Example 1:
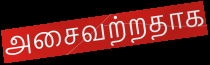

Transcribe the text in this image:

அசைவற்றதாக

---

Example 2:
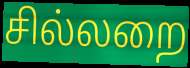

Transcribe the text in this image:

சில்லறை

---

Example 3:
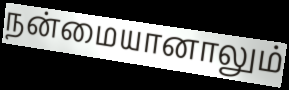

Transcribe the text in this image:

நன்மையானாலும்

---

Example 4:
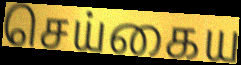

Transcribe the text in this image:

செய்கைய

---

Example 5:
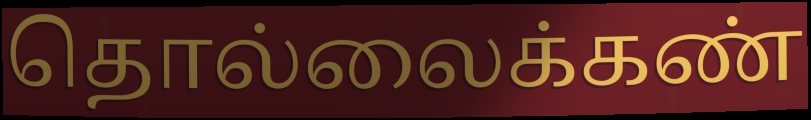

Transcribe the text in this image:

தொல்லைக்கண்